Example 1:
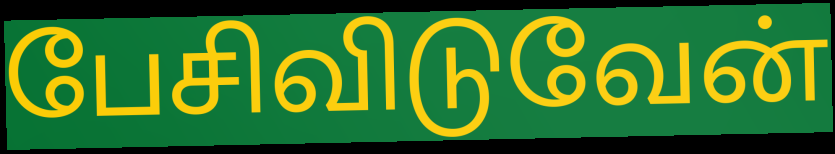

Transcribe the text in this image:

பேசிவிடுவேன்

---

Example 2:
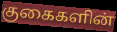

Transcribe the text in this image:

குகைகளின்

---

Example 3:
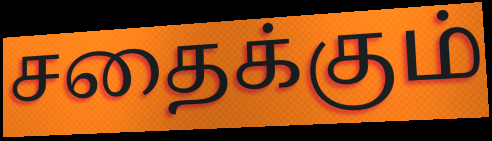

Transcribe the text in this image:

சதைக்கும்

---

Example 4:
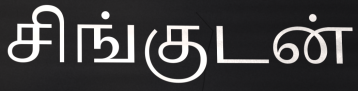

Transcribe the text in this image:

சிங்குடன்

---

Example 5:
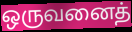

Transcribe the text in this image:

ஒருவனைத்